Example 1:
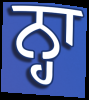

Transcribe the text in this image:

ਨ੍ਹਾ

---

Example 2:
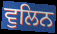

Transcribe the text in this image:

ਵੁਲਿਨ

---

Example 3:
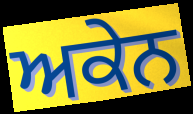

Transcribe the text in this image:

ਅਕੇਨ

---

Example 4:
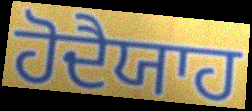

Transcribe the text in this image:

ਹੋਦੈਯਾਹ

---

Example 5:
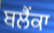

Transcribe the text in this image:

ਬਲੈਂਕਾ